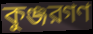
কুঞ্জরগণ